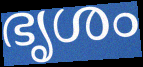
ഭൃശം